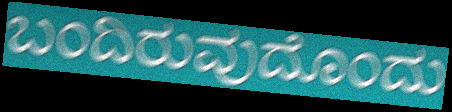
ಬಂದಿರುವುದೊಂದು